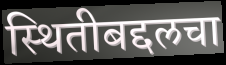
स्थितीबद्दलचा